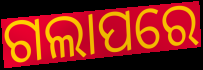
ଗଲାପରେ